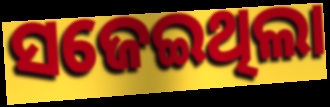
ସଜେଇଥିଲା